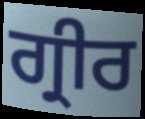
ਗ੍ਰੀਰ